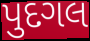
પુદગલ